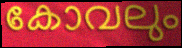
കോവലും